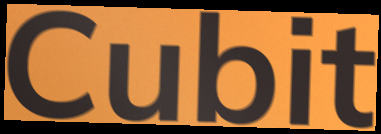
Cubit